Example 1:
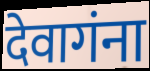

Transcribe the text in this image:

देवागंना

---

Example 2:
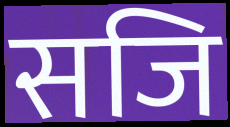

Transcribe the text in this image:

सजि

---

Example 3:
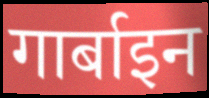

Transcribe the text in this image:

गार्बाइन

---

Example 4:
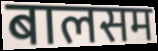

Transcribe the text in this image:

बालसम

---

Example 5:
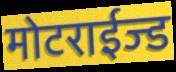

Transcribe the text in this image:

मोटराईज्ड